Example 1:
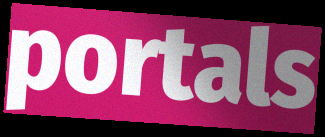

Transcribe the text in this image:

portals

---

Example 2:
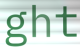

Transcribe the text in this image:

ght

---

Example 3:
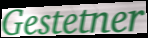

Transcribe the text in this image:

Gestetner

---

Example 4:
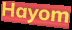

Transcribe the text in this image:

Hayom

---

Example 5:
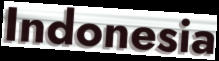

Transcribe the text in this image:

Indonesia